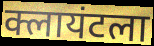
क्लायंटला